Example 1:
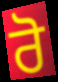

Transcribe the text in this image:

ਰੋ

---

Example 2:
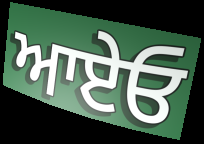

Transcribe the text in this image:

ਆਏਓ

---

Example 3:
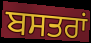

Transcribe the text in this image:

ਬਸਤਰਾਂ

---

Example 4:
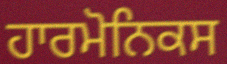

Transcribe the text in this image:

ਹਾਰਮੋਨਿਕਸ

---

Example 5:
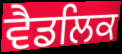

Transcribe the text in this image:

ਵੈਡਲਿਕ